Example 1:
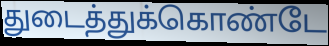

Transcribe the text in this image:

துடைத்துக்கொண்டே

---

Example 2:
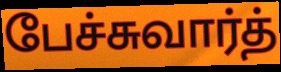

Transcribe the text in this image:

பேச்சுவார்த்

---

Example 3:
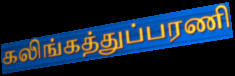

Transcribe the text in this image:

கலிங்கத்துப்பரணி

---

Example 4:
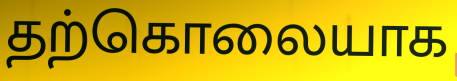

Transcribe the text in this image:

தற்கொலையாக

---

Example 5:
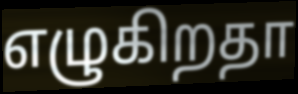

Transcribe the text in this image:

எழுகிறதா